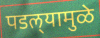
पडल्यामुळे